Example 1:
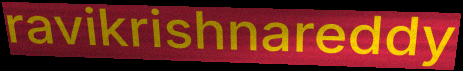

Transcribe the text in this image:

ravikrishnareddy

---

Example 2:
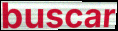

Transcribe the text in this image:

buscar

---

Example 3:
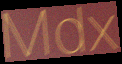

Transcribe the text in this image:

Mdx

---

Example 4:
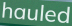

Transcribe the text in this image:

hauled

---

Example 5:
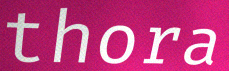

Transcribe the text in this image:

thora